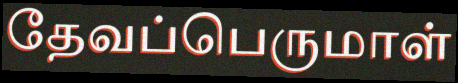
தேவப்பெருமாள்